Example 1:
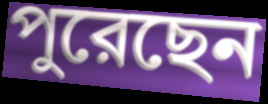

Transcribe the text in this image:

পুরেছেন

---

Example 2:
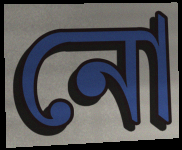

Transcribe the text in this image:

নো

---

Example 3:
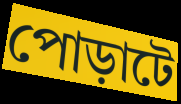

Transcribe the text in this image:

পোড়াটে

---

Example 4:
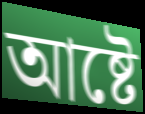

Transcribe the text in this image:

আষ্টে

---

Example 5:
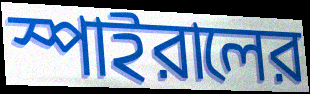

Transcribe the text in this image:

স্পাইরালের